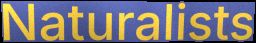
Naturalists